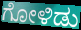
ಗೋಳಿಡು